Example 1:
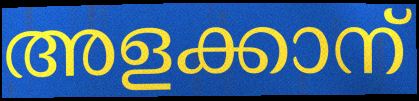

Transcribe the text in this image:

അളക്കാന്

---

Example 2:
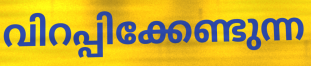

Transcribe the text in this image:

വിറപ്പിക്കേണ്ടുന്ന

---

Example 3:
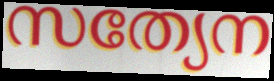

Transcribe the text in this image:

സത്യേന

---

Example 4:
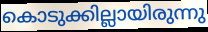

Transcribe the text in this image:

കൊടുക്കില്ലായിരുന്നു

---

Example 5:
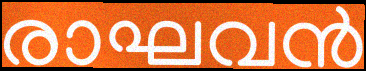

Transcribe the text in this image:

രാഘവൻ